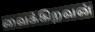
வைக்கிறவன்